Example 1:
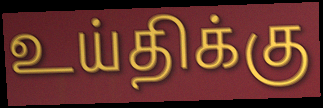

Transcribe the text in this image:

உய்திக்கு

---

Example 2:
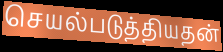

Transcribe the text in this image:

செயல்படுத்தியதன்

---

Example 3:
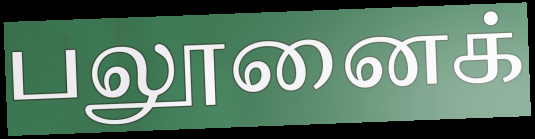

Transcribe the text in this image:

பலூனைக்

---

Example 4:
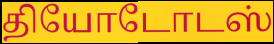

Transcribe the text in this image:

தியோடோடஸ்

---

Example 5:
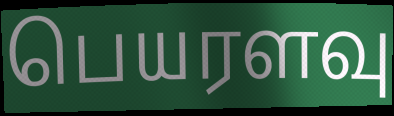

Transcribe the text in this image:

பெயரளவு